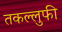
तकल्लुफी